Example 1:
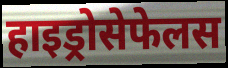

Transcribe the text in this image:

हाइड्रोसेफेलस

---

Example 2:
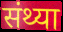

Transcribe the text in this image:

संथ्या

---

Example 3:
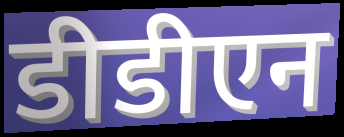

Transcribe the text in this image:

डीडीएन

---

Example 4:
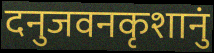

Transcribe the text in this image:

दनुजवनकृशानुं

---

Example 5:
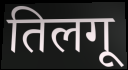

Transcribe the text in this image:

तिलगू